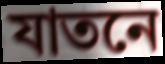
যাতনে